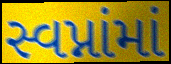
સ્વપ્નાંમાં